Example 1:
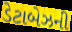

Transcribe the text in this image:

ડેટાબેઝની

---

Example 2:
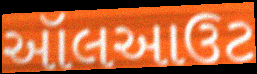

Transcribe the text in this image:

ઑલઆઉટ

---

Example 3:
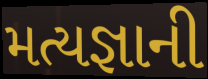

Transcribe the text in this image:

મત્યજ્ઞાની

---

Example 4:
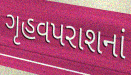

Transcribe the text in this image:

ગૃહવપરાશનાં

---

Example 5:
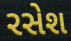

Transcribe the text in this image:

રસેશ